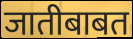
जातीबाबत